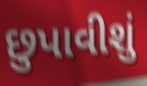
છુપાવીશું